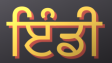
ਇੰਡੀ